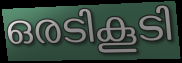
ഒരടികൂടി